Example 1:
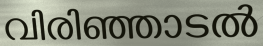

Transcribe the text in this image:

വിരിഞ്ഞാടൽ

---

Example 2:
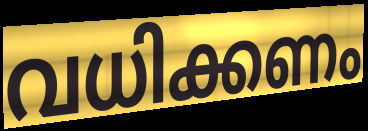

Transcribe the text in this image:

വധിക്കണം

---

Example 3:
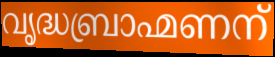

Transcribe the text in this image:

വൃദ്ധബ്രാഹ്മണന്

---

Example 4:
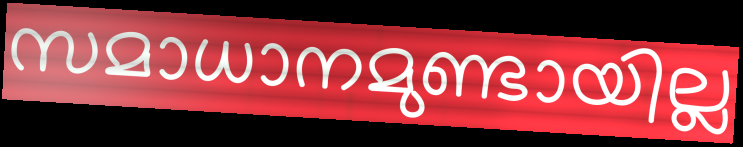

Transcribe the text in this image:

സമാധാനമുണ്ടായില്ല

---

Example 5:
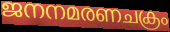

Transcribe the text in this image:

ജനനമരണചക്രം